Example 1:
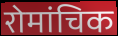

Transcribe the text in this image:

रोमांचिक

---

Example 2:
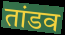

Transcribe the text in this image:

तांडव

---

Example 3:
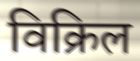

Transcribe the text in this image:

विक्रिल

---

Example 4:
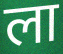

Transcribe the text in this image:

ला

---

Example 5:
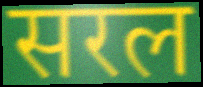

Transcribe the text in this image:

सरल